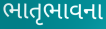
ભાતૃભાવના